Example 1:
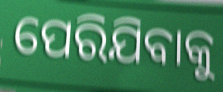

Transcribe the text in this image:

ପେରିଯିବାକୁ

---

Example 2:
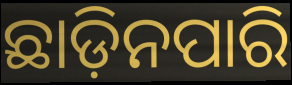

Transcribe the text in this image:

ଛାଡ଼ିନପାରି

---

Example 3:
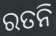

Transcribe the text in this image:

ରତନି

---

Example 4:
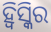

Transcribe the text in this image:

ହ୍ୱିସ୍କିର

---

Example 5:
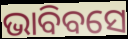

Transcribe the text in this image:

ଭାବିବସେ